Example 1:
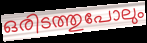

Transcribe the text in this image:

ഒരിടത്തുപോലും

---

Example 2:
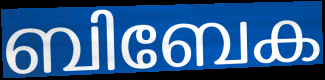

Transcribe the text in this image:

ബിബേക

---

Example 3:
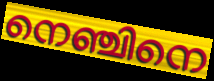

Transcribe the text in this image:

നെഞ്ചിനെ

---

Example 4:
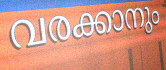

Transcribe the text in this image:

വരക്കാനും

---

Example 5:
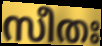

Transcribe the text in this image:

സീതഃ